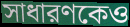
সাধারণকেও